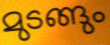
മുടങ്ങും